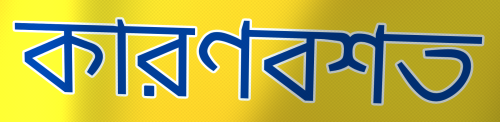
কারণবশত